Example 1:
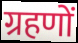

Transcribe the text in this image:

ग्रहणों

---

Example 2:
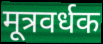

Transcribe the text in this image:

मूत्रवर्धक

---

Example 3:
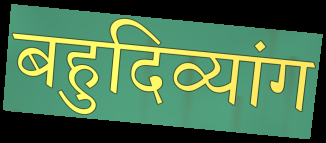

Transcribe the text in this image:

बहुदिव्यांग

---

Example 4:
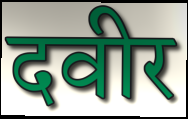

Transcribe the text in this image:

दवीर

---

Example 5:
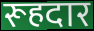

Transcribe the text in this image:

रूहदार